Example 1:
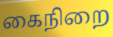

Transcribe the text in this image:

கைநிறை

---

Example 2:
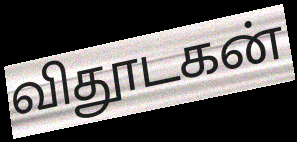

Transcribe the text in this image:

விதூடகன்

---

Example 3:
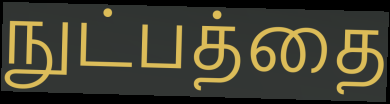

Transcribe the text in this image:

நுட்பத்தை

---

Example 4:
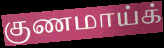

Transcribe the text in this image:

குணமாய்க்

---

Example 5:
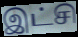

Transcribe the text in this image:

இட்சி